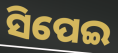
ସିପେଇ